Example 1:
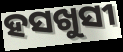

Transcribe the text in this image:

ହସଖୁସୀ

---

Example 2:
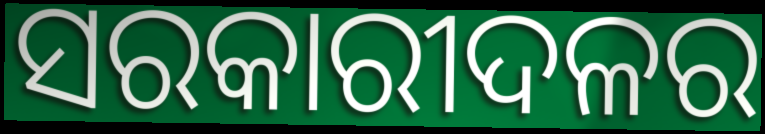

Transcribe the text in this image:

ସରକାରୀଦଳର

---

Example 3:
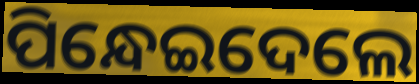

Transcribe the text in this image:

ପିନ୍ଧେଇଦେଲେ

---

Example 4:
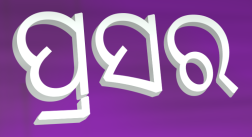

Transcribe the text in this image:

ପ୍ରସର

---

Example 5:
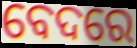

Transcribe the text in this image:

ବେଦରେ